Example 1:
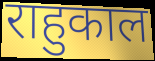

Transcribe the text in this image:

राहुकाल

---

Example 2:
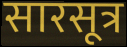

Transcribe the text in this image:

सारसूत्र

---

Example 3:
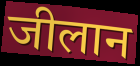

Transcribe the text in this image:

जीलान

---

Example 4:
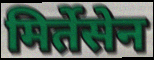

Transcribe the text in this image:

मिर्तेसेन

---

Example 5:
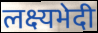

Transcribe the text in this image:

लक्ष्यभेदी